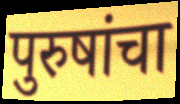
पुरुषांचा